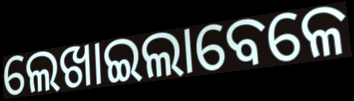
ଲେଖାଇଲାବେଳେ